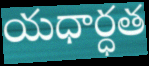
యధార్ధత